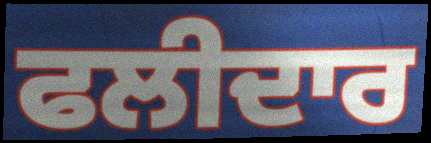
ਫਲੀਦਾਰ